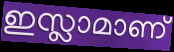
ഇസ്ലാമാണ്